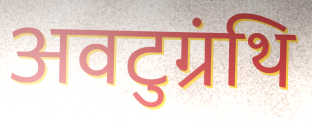
अवटुग्रंथि